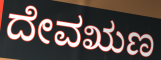
ದೇವಋಣ